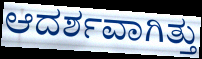
ಆದರ್ಶವಾಗಿತ್ತು